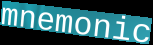
mnemonic